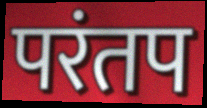
परंतप